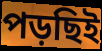
পড়ছিই